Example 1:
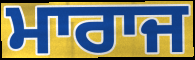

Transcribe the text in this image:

ਮਾਰਾਜ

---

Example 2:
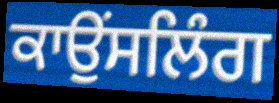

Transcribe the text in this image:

ਕਾਉੰਸਲਿੰਗ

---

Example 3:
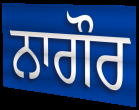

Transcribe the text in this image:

ਨਾਗੌਰ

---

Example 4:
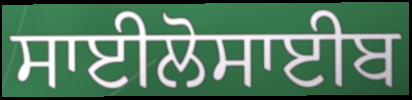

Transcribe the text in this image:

ਸਾਈਲੋਸਾਈਬ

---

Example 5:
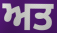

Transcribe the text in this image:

ਅਤ